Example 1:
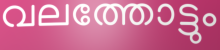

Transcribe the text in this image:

വലത്തോട്ടും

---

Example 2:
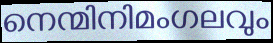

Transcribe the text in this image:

നെന്മിനിമംഗലവും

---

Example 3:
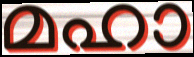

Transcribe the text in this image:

മഹാ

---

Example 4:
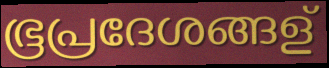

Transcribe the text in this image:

ഭൂപ്രദേശങ്ങള്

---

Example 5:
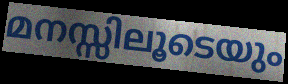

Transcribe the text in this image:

മനസ്സിലൂടെയും